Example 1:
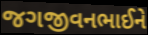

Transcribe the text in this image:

જગજીવનભાઈને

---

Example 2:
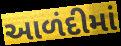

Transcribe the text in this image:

આળંદીમાં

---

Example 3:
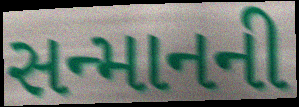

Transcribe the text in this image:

સન્માનની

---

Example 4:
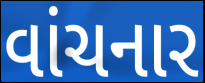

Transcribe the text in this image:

વાંચનાર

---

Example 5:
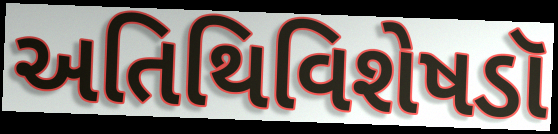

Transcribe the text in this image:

અતિથિવિશેષડૉ